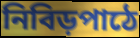
নিবিড়পাঠে